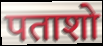
पताशो